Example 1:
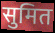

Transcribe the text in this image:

सुमित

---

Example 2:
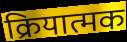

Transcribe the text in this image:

क्रियात्मक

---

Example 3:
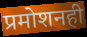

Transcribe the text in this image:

प्रमोशनही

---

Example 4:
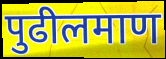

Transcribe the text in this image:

पुढीलमाण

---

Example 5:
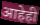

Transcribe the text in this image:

आहेही